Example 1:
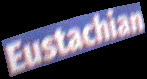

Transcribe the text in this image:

Eustachian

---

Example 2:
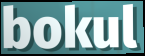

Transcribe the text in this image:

bokul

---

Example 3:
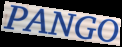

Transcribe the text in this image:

PANGO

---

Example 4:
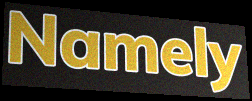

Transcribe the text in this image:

Namely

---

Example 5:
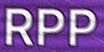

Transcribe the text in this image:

RPP